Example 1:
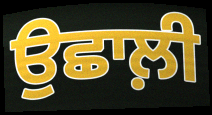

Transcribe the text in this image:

ਉਛਾਲ਼ੀ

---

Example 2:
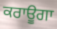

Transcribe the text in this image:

ਕਰਾਊਗਾ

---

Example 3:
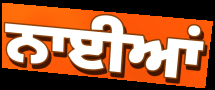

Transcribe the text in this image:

ਨਾਈਆਂ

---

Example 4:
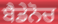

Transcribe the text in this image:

ਬੈਡੇਨੋਚ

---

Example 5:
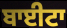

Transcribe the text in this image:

ਬਾਈਟਾ